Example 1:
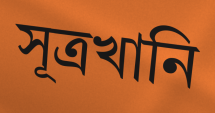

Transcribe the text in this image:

সূত্রখানি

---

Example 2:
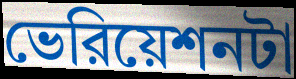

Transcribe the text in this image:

ভেরিয়েশনটা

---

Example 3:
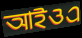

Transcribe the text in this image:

আইওএ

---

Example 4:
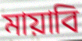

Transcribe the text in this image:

মায়াবি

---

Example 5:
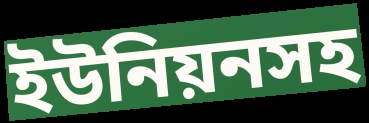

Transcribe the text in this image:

ইউনিয়নসহ